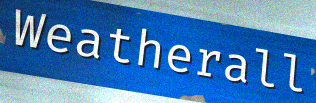
Weatherall